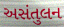
અસંતુલન